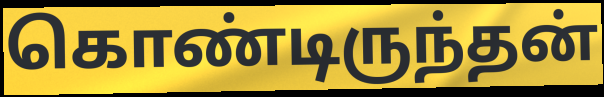
கொண்டிருந்தன்